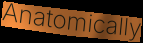
Anatomically